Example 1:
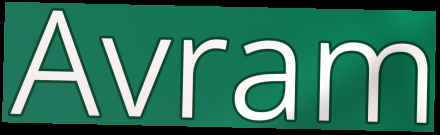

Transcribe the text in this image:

Avram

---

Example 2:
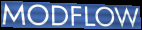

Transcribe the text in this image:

MODFLOW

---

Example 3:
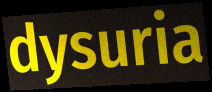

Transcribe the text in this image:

dysuria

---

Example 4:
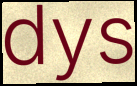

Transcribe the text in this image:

dys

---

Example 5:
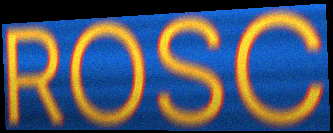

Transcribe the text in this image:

ROSC